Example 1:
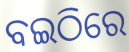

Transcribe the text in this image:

ବଇଠିରେ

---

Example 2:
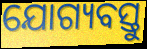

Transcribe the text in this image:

ଯୋଗ୍ୟବସ୍ତୁ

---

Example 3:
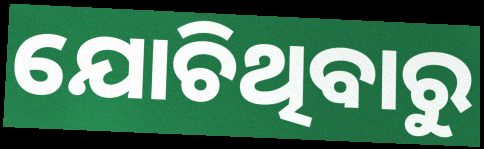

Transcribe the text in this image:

ଯୋଚିଥିବାରୁ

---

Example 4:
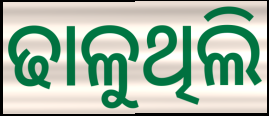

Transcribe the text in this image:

ଢାଳୁଥିଲି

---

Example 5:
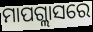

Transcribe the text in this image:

ମାପଗ୍ଲାସରେ